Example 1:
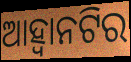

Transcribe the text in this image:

ଆହ୍ଵାନଟିର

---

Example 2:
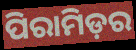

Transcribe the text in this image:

ପିରାମିଡ଼ର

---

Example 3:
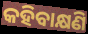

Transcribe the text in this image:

କହିବାକ୍ଷଣି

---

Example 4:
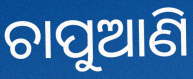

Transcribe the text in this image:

ଚାପୁଆଣି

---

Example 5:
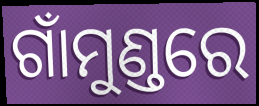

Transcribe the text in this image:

ଗାଁମୁଣ୍ଡରେ